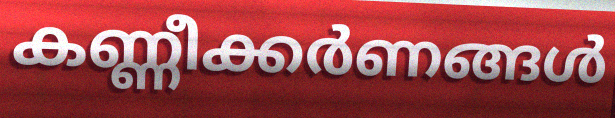
കണ്ണീക്കർണങ്ങൾ